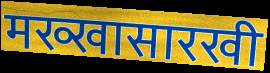
मख्खासारखी